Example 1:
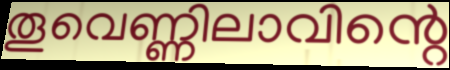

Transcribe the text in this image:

തൂവെണ്ണിലാവിന്റെ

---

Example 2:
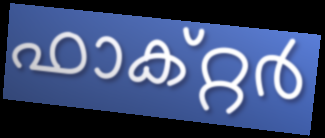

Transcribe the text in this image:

ഫാക്റ്റർ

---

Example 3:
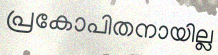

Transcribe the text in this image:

പ്രകോപിതനായില്ല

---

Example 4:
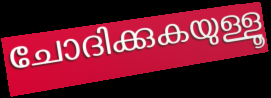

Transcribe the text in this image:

ചോദിക്കുകയുള്ളൂ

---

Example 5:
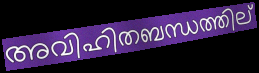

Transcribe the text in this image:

അവിഹിതബന്ധത്തില്